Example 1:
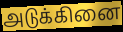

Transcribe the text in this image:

அடுக்கினை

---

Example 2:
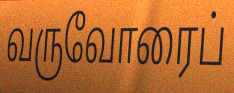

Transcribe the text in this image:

வருவோரைப்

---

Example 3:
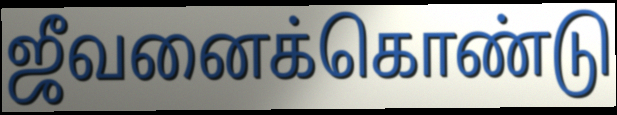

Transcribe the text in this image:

ஜீவனைக்கொண்டு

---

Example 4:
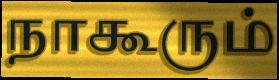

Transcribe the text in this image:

நாகூரும்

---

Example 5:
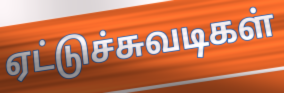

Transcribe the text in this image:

ஏட்டுச்சுவடிகள்